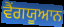
ਵੈਂਗਯੂਆਨ